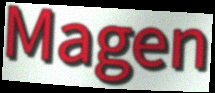
Magen